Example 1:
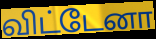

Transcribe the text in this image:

விட்டேனா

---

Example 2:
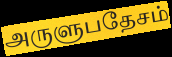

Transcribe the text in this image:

அருளுபதேசம்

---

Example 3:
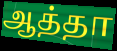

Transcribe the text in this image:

ஆத்தா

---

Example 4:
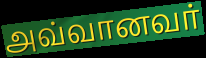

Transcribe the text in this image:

அவ்வானவர்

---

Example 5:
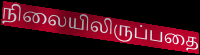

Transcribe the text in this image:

நிலையிலிருப்பதை